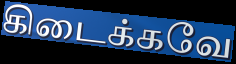
கிடைக்கவே